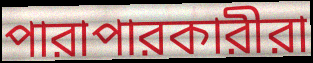
পারাপারকারীরা